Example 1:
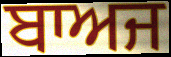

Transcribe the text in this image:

ਬਾਅਜ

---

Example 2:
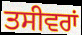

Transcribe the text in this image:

ਤਸੀਵਰਾਂ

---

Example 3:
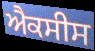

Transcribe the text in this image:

ਐਕਸੀਸ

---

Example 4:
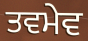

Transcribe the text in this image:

ਤਵਮੇਵ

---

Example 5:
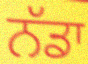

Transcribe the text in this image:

ਨੱਡਾ